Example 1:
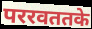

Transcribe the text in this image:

पररवततके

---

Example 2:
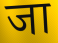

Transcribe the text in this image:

जा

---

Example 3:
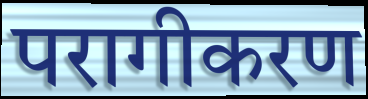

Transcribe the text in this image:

परागीकरण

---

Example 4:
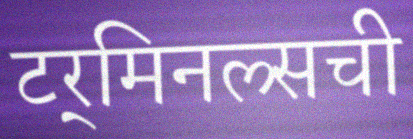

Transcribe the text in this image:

टर्मिनल्सची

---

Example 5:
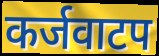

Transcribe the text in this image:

कर्जवाटप